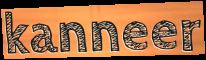
kanneer